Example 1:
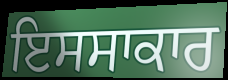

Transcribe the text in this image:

ਇਸਸਾਕਾਰ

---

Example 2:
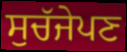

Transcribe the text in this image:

ਸੁਚੱਜੇਪਣ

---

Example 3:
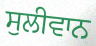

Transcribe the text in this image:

ਸੁਲੀਵਾਨ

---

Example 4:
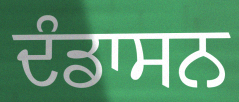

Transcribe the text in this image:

ਦੰਡਾਸਨ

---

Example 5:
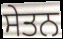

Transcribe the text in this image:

ਸੇਤਨ